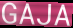
GAJA